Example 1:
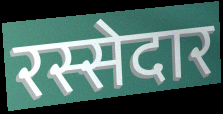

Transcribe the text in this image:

रस्सेदार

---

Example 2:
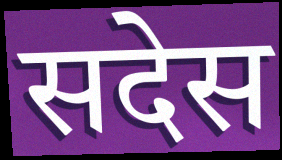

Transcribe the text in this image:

सदेस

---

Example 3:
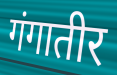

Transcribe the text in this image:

गंगातीर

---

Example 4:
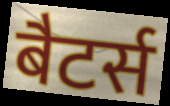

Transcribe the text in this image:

बैटर्स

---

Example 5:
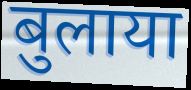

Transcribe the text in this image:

बुलाया